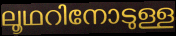
ലൂഥറിനോടുള്ള